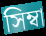
সিম্বা